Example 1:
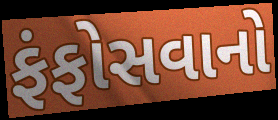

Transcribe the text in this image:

ફંફોસવાનો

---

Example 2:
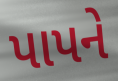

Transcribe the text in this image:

પાપને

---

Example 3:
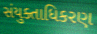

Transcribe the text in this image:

સંયુક્તાધિકરણ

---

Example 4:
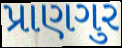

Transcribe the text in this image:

પ્રાણગુર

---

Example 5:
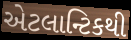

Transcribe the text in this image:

એટલાન્ટિકથી